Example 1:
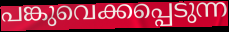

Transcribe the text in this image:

പങ്കുവെക്കപ്പെടുന്ന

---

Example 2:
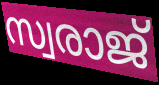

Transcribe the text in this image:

സ്വരാജ്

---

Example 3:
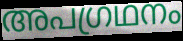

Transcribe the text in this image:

അപഗ്രഥനം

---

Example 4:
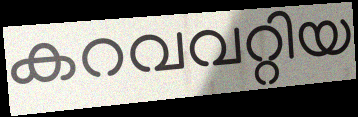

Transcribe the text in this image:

കറവവറ്റിയ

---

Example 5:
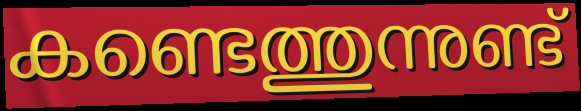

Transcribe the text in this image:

കണ്ടെത്തുന്നുണ്ട്